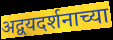
अद्वयदर्शनाच्या